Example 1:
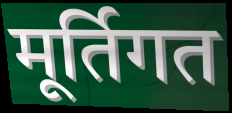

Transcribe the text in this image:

मूर्तिगत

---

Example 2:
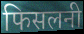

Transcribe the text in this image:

फिसलनी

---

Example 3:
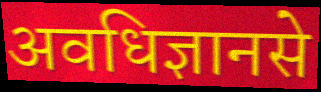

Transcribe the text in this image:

अवधिज्ञानसे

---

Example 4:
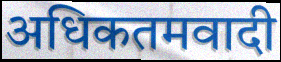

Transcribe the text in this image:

अधिकतमवादी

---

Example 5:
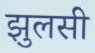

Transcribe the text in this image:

झुलसी